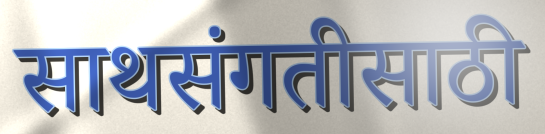
साथसंगतीसाठी